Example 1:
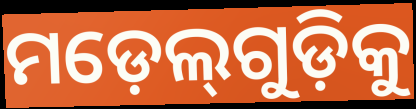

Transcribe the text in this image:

ମଡ଼େଲ୍‌ଗୁଡ଼ିକୁ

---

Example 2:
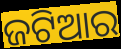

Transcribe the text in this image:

ଜଟିଆର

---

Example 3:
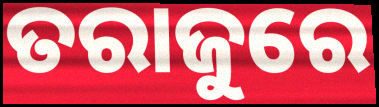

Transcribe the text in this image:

ତରାଜୁରେ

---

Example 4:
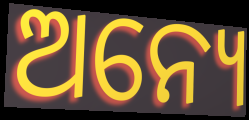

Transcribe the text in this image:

ଅନ୍ୟେ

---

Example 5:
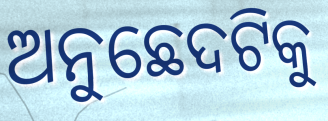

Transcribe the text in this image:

ଅନୁଛେଦଟିକୁ